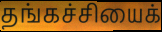
தங்கச்சியைக்